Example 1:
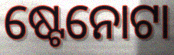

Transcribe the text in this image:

ଷ୍ଟେନୋଟା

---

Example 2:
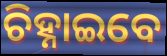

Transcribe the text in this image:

ଚିହ୍ନାଇବେ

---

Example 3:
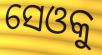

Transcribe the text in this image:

ସେଓକୁ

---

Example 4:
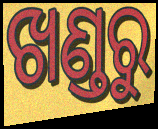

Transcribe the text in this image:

ଖଣ୍ଡରୁ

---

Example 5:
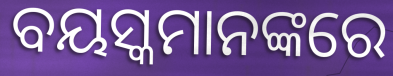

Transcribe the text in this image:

ବୟସ୍କମାନଙ୍କରେ